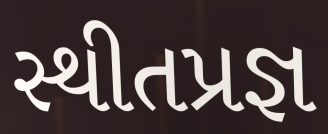
સ્થીતપ્રજ્ઞ